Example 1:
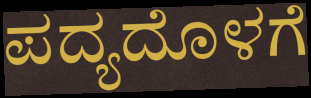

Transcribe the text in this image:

ಪದ್ಯದೊಳಗೆ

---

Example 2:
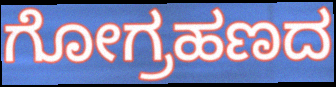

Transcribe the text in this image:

ಗೋಗ್ರಹಣದ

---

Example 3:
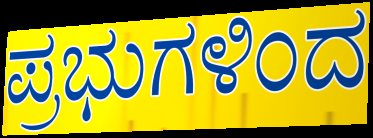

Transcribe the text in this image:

ಪ್ರಭುಗಳಿಂದ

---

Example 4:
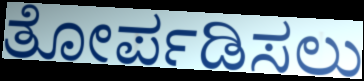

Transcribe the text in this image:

ತೋರ್ಪಡಿಸಲು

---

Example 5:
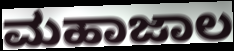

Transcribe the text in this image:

ಮಹಾಜಾಲ